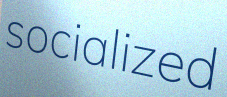
socialized